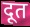
दूत